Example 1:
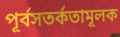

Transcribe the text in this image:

পূর্বসতর্কতামূলক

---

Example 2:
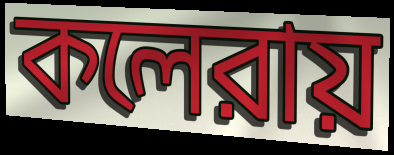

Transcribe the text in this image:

কলেরায়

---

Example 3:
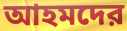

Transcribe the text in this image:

আহমদের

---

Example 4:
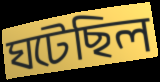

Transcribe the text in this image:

ঘটেছিল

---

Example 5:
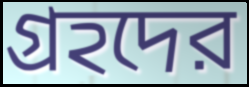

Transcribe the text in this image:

গ্রহদের